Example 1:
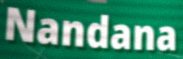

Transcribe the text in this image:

Nandana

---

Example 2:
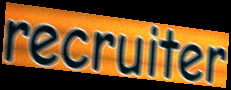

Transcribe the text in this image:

recruiter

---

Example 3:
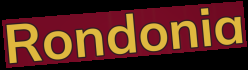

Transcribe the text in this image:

Rondonia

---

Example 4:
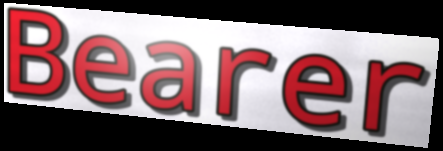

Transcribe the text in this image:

Bearer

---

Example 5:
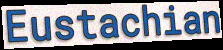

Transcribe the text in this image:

Eustachian